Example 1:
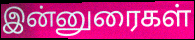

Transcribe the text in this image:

இன்னுரைகள்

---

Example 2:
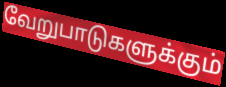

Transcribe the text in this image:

வேறுபாடுகளுக்கும்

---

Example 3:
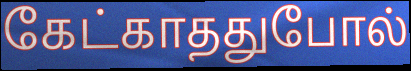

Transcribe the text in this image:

கேட்காததுபோல்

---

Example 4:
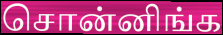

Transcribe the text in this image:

சொன்னிங்க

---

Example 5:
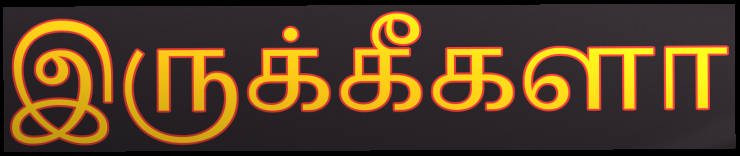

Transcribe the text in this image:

இருக்கீகளா